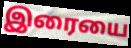
இரையை